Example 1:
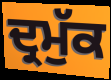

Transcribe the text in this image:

ਦ੍ਰਮੁੱਕ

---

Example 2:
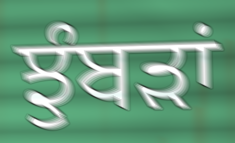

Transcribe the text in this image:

ਝੁੰਬੜਾਂ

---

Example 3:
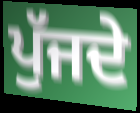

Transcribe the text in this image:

ਪੁੱਜਦੇ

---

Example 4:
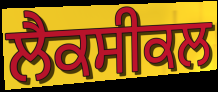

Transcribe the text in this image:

ਲੈਕਸੀਕਲ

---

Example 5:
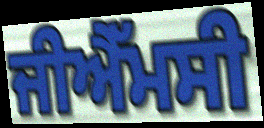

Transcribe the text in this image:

ਜੀਐੱਮਸੀ